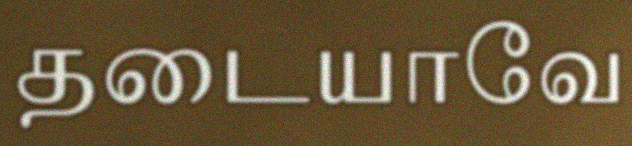
தடையாவே